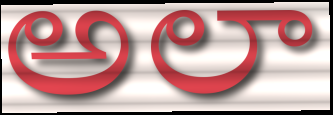
అలా